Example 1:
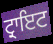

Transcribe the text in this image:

ਟ੍ਰਾਇਟ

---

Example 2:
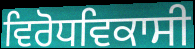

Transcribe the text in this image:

ਵਿਰੋਧਵਿਕਾਸੀ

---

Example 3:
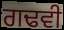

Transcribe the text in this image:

ਗਢਵੀ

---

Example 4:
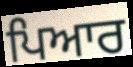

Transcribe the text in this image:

ਪਿਆਰ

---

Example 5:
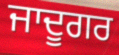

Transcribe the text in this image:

ਜਾਦੂਗਰ